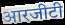
आरजीटी